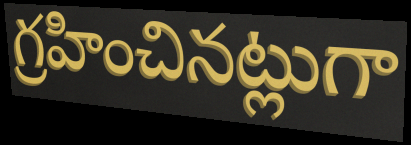
గ్రహించినట్లుగా